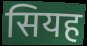
सियह